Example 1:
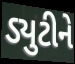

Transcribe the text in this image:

ડ્યુટીને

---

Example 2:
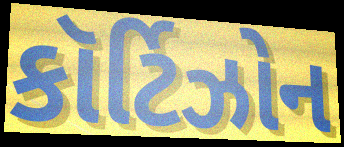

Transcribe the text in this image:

કૉર્ટિઝોન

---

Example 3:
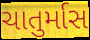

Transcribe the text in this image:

ચાતુર્માસ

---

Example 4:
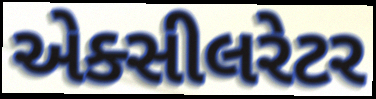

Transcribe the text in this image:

એક્સીલરેટર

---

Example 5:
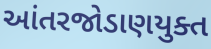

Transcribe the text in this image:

આંતરજોડાણયુક્ત